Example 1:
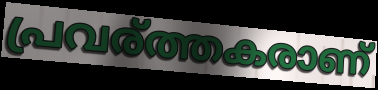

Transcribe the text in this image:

പ്രവര്ത്തകരാണ്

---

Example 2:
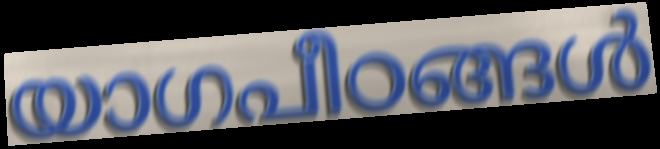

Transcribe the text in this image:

യാഗപീഠങ്ങൾ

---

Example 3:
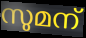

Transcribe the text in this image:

സുമന്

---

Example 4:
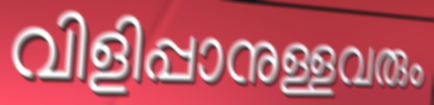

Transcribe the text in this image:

വിളിപ്പാനുള്ളവരും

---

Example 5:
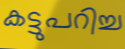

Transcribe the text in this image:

കട്ടുപറിച്ച